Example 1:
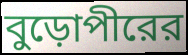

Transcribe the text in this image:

বুড়োপীরের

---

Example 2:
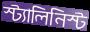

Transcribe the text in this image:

স্ট্যালিনিস্ট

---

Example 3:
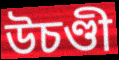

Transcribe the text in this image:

উচণ্ডী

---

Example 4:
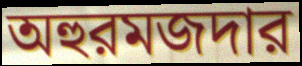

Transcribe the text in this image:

অহুরমজদার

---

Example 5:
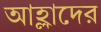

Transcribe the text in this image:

আহ্লাদের